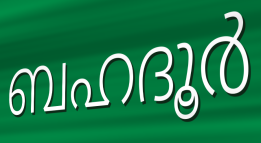
ബഹദൂർ